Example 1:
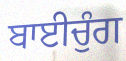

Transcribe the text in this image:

ਬਾਈਚੁੰਗ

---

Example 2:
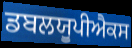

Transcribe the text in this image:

ਡਬਲਯੂਪੀਐਕਸ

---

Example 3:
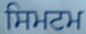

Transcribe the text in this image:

ਸਿਮਟਮ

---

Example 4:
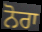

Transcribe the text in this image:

ਨੋਰਾ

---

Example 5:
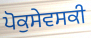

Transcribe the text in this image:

ਪੋਕੁਸੇਵਸਕੀ